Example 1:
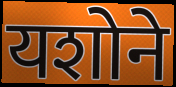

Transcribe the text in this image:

यशोने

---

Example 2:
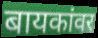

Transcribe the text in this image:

बायकांवर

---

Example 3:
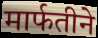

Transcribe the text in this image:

मार्फतीने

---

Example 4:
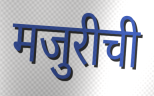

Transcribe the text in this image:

मजुरीची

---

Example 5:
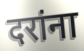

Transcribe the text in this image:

दरांना